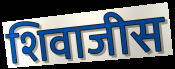
शिवाजीस